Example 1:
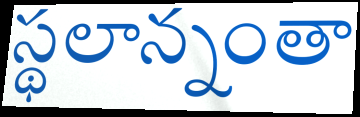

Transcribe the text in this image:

స్థలాన్నంతా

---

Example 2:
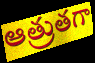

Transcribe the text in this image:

ఆత్రుతగా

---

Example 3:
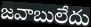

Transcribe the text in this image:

జవాబులేదు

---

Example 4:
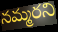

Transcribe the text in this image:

నమ్మరని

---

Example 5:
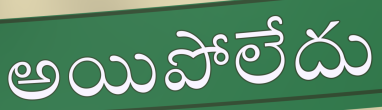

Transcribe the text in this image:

అయిపోలేదు